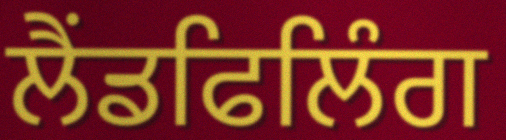
ਲੈਂਡਫਿਲਿੰਗ